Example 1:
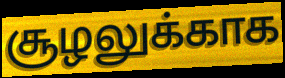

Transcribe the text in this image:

சூழலுக்காக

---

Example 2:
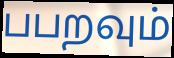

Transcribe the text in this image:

பபறவும்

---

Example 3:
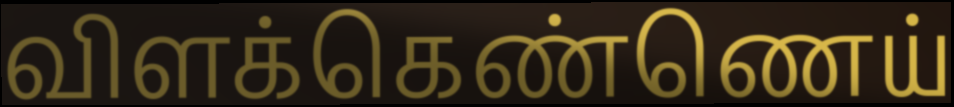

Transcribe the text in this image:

விளக்கெண்ணெய்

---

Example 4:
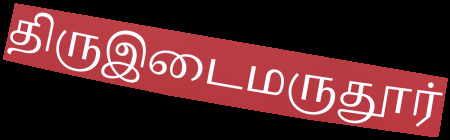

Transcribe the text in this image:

திருஇடைமருதூர்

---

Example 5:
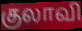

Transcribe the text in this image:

குலாவி